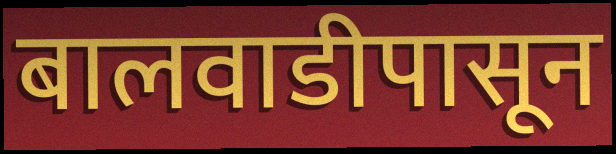
बालवाडीपासून